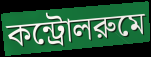
কন্ট্রোলরুমে